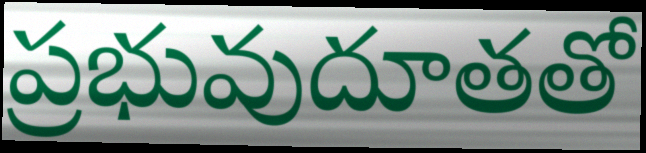
ప్రభువుదూతతో